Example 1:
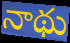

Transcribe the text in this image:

నాథు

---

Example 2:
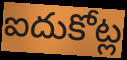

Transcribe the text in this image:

ఐదుకోట్ల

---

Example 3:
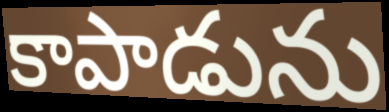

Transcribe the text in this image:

కాపాడును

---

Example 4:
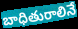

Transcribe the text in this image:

బాధితురాలినే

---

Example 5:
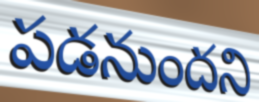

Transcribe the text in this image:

పడనుందని